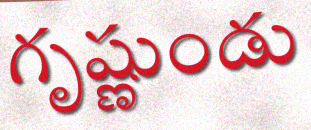
గృష్ణుండు